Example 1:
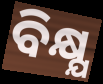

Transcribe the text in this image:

ବିକ୍ଷ୍ଯ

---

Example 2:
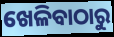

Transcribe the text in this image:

ଖେଳିବାଠାରୁ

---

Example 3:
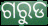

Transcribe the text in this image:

ଗରୁଡ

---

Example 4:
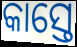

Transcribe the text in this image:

କାସ୍ତେ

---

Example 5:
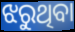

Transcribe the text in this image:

ଝରୁଥିବା